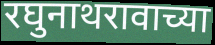
रघुनाथरावाच्या